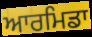
ਆਰਮਿਡਾ